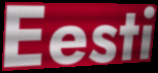
Eesti